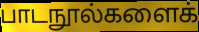
பாடநூல்களைக்